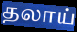
தலாய்